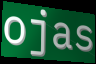
ojas